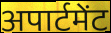
अपार्टमेंट